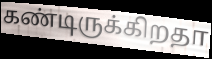
கண்டிருக்கிறதா